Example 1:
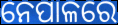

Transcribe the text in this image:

ନେପାଳରେ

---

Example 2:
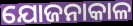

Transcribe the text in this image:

ଯୋଜନାକାଳ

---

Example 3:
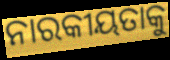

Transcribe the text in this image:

ନାରକୀୟତାକୁ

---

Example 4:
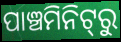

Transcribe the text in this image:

ପାଞ୍ଚମିନିଟ୍‌ରୁ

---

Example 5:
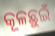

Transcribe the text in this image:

କୂଳଛୁଇଁ